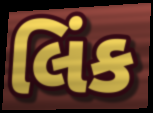
લિંક